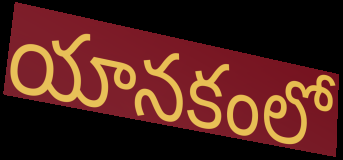
యానకంలో